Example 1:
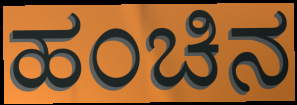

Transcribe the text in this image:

ಹಂಚಿನ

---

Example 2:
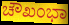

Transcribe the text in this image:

ಚೌಖಂಭಾ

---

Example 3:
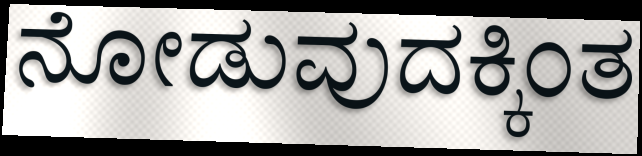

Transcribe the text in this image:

ನೋಡುವುದಕ್ಕಿಂತ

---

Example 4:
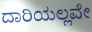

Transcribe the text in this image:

ದಾರಿಯಲ್ಲವೇ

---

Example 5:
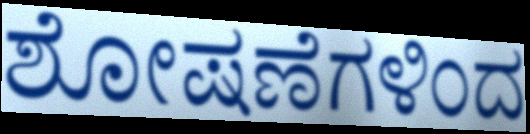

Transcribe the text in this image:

ಶೋಷಣೆಗಳಿಂದ